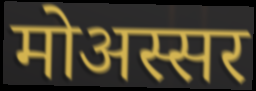
मोअस्सर